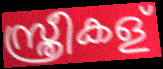
സ്ത്രീകള്